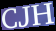
CJH